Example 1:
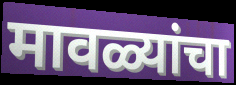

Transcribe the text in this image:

मावळ्यांचा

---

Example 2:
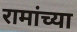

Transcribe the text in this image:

रामांच्या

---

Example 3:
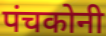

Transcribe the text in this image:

पंचकोनी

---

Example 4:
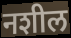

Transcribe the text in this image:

नशील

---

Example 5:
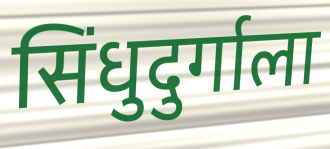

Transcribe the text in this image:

सिंधुदुर्गाला